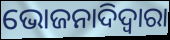
ଭୋଜନାଦିଦ୍ୱାରା